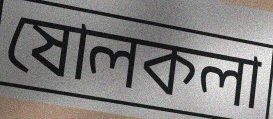
ষোলকলা